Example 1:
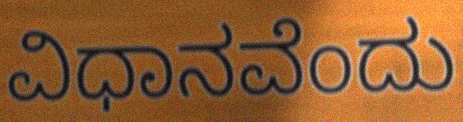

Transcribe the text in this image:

ವಿಧಾನವೆಂದು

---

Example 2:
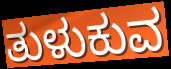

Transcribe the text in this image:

ತುಳುಕುವ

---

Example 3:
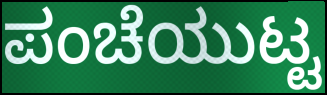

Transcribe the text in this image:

ಪಂಚೆಯುಟ್ಟ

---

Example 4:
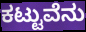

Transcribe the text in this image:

ಕಟ್ಟುವೆನು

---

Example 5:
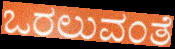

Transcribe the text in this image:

ಒರಲುವಂತೆ